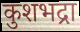
कुशभद्रा